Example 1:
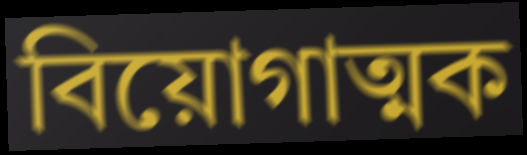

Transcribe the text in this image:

বিয়োগাত্মক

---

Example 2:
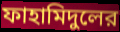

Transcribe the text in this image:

ফাহামিদুলের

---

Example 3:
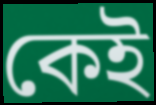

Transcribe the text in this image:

কেই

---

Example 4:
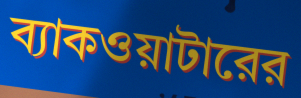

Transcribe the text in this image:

ব্যাকওয়াটারের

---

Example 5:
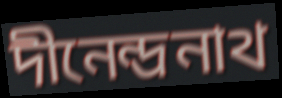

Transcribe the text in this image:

দীনেন্দ্রনাথ